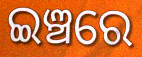
ଇଞ୍ଚରେ